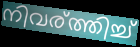
നിവര്ത്തിച്ച്